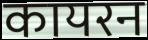
कायरन